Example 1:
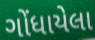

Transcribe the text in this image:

ગોંધાયેલા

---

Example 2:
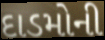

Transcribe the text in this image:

દાડમોની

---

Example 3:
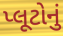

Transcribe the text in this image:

પ્લૂટોનું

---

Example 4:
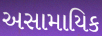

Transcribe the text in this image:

અસામાયિક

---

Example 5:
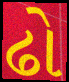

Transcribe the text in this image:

ઢો